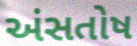
અંસતોષ